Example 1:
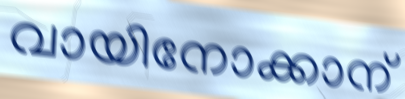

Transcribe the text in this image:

വായിനോക്കാന്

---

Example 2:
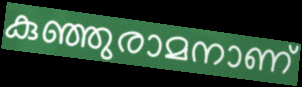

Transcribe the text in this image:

കുഞ്ഞുരാമനാണ്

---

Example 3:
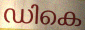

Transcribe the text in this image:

ഡികെ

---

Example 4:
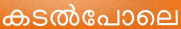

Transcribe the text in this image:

കടൽപോലെ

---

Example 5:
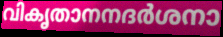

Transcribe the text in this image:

വികൃതാനനദർശനാ